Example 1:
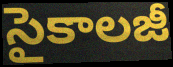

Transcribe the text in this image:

సైకాలజీ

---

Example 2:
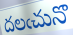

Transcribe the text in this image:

దలఁచునొ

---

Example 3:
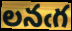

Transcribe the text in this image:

లనఁగ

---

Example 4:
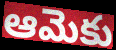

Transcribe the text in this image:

ఆమెకు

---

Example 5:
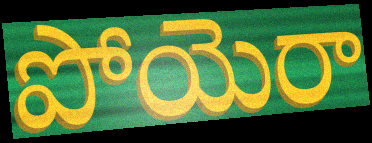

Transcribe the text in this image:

పోయెరా